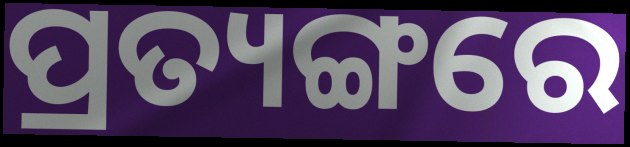
ପ୍ରତ୍ୟଙ୍ଗରେ